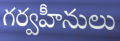
గర్వహీనులు